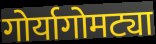
गोर्यागोमट्या